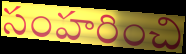
సంహరించి